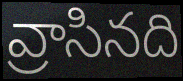
వ్రాసినది